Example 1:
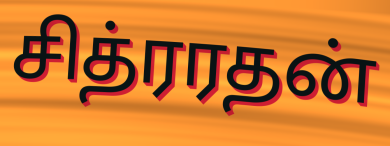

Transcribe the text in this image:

சித்ரரதன்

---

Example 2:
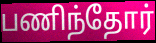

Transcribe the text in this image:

பணிந்தோர்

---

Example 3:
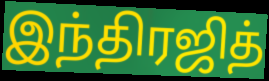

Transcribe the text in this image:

இந்திரஜித்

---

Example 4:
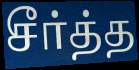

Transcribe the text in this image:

சீர்த்த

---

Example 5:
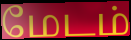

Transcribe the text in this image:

மேடம்